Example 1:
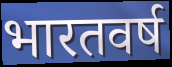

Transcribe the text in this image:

भारतवर्ष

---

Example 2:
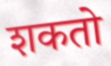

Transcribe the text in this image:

शकतो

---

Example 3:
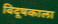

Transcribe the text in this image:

विदूषकाला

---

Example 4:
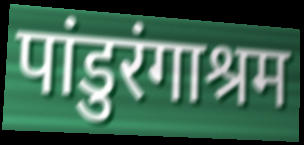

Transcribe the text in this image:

पांडुरंगाश्रम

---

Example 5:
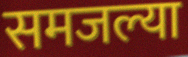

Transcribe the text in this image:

समजल्या